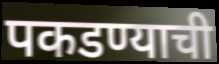
पकडण्याची